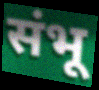
संभू